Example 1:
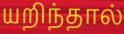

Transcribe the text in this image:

யறிந்தால்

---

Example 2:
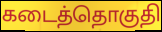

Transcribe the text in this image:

கடைத்தொகுதி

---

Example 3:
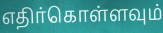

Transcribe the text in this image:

எதிர்கொள்ளவும்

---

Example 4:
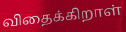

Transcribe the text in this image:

விதைக்கிறாள்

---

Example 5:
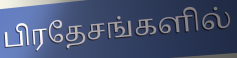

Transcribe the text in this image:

பிரதேசங்களில்